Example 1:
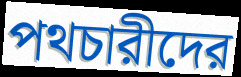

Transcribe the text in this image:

পথচারীদের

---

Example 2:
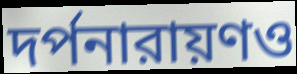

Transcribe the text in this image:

দর্পনারায়ণও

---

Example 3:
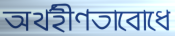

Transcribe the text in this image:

অর্থহীণতাবোধে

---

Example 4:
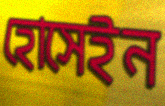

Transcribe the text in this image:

হোসেইন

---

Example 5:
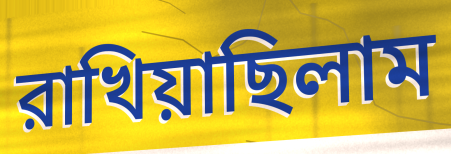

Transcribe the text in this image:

রাখিয়াছিলাম